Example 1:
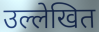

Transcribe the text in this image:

उल्लेखित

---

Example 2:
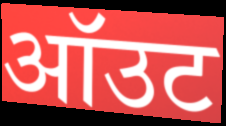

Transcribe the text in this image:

ऑउट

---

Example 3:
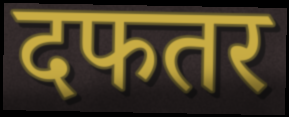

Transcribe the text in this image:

दफतर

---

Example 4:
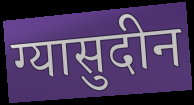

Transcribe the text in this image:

ग्यासुदीन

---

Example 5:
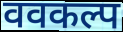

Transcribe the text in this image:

ववकल्प